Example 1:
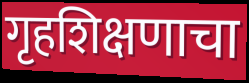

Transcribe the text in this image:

गृहशिक्षणाचा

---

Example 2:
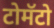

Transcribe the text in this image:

टोमॅटो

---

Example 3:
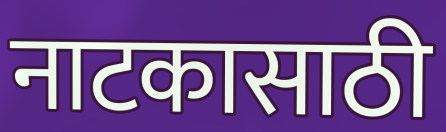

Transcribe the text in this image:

नाटकासाठी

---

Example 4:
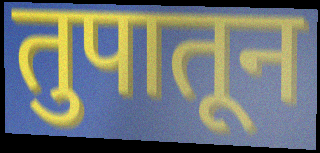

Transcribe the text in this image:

तुपातून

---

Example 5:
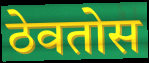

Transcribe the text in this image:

ठेवतोस